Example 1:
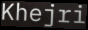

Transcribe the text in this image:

Khejri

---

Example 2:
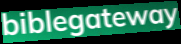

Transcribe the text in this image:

biblegateway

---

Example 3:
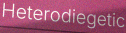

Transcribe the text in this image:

Heterodiegetic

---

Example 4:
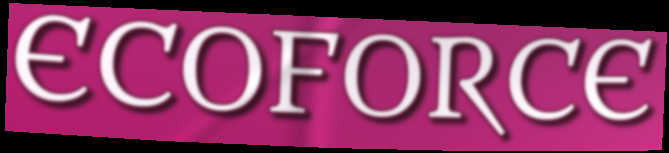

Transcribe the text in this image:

ECOFORCE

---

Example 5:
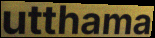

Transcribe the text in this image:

utthama